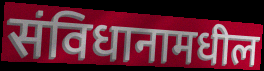
संविधानामधील